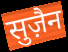
सुज़ैन